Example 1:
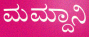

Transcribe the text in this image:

ಮಮ್ದಾನಿ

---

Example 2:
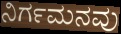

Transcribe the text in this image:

ನಿರ್ಗಮನವು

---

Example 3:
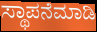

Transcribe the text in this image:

ಸ್ಥಾಪನೆಮಾಡಿ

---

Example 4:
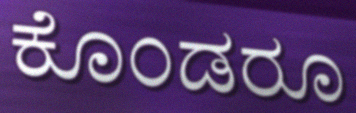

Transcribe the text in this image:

ಕೊಂಡರೂ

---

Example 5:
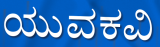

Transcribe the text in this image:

ಯುವಕವಿ